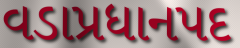
વડાપ્રધાનપદ